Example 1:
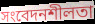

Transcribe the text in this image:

সংবেদনশীলতা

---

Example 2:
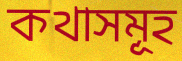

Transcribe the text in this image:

কথাসমূহ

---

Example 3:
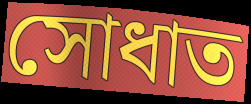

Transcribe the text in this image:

সোধাত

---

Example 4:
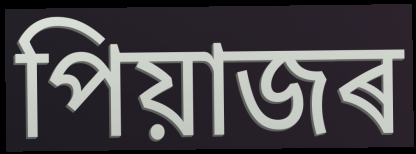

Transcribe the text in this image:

পিয়াজৰ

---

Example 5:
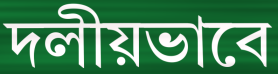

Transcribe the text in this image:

দলীয়ভাবে